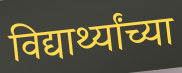
विद्यार्थ्यांच्या